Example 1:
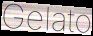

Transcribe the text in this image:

Gelato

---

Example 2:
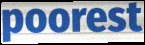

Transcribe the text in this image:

poorest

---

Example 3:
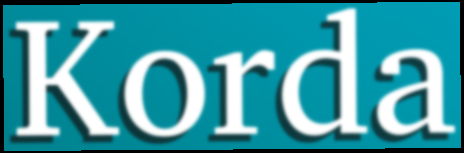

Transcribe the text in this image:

Korda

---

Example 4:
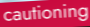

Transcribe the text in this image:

cautioning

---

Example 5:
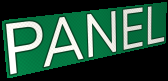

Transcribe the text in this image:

PANEL